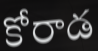
కోరాడ